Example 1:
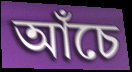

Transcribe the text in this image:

আঁচে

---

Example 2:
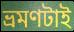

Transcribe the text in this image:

ভ্রমণটাই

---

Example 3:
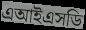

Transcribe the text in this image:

এআইএসডি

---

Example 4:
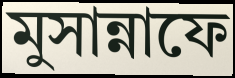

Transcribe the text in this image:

মুসান্নাফে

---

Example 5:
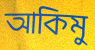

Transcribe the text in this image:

আকিমু